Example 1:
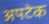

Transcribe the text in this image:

अपटेक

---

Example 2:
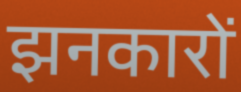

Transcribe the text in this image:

झनकारों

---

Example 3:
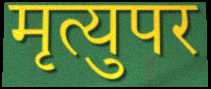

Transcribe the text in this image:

मृत्युपर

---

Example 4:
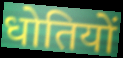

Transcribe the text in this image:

धोतियों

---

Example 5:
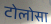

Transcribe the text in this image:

टोलोसा